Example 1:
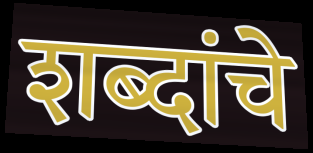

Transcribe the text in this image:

शब्दांचे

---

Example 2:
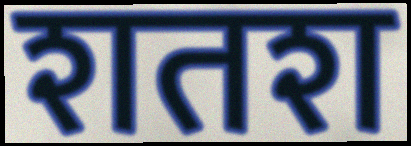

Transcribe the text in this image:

शतश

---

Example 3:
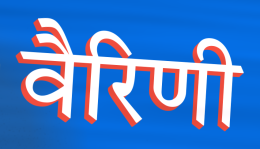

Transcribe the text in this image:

वैरिणी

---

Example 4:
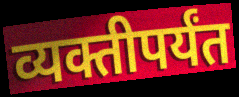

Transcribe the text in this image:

व्यक्तीपर्यंत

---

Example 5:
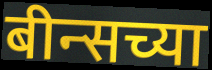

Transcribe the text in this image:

बीन्सच्या